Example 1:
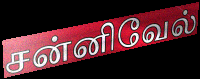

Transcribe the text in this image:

சன்னிவேல்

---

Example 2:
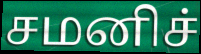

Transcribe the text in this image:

சமனிச்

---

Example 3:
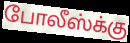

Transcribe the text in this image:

போலீஸ்க்கு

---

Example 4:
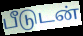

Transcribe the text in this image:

பீடுடன்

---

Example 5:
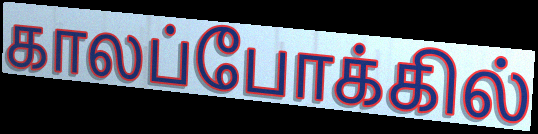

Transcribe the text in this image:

காலப்போக்கில்